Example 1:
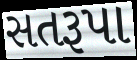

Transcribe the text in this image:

સતરૂપા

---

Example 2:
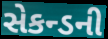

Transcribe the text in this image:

સેકન્ડની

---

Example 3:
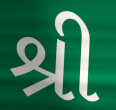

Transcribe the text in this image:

શ્રી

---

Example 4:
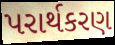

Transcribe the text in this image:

પરાર્થકરણ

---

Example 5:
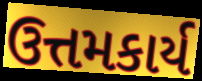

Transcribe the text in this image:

ઉત્તમકાર્ય